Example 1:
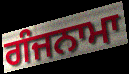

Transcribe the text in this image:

ਗੰਜਨਾਮਾ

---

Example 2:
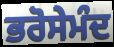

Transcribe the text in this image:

ਭਰੋਸੇਮੰਦ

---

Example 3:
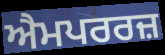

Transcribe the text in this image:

ਐਮਪਰਰਜ਼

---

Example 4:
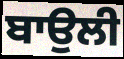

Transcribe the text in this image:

ਬਾਉਲੀ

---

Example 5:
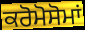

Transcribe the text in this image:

ਕਰੋਮੋਸੋਮਾਂ